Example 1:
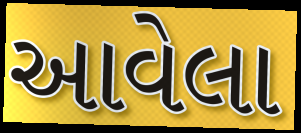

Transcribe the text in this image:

આવેલા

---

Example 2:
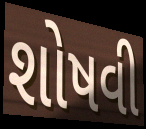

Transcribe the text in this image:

શોષવી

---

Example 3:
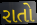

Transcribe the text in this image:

રાતો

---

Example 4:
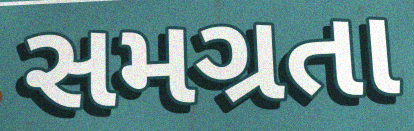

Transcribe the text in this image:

સમગ્રતા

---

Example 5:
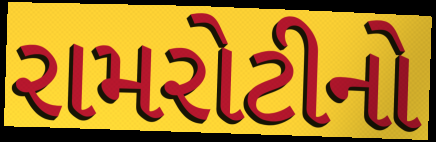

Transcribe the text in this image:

રામરોટીનો